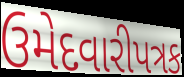
ઉમેદવારીપત્રક